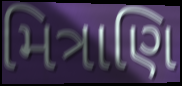
મિત્રાણિ